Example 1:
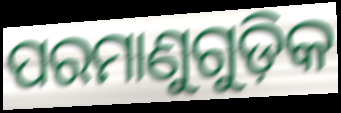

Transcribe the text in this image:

ପରମାଣୁଗୁଡ଼ିକ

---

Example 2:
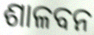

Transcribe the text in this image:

ଶାଳବନ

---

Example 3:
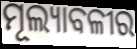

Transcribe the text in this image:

ମୂଲ୍ୟାବଳୀର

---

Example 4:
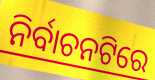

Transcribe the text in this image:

ନିର୍ବାଚନଟିରେ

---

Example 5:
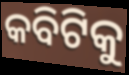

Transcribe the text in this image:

କବିଟିକୁ